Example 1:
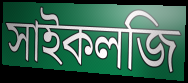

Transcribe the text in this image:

সাইকলজি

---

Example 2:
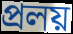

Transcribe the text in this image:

প্রলয়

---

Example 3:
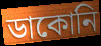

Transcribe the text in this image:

ডাকোনি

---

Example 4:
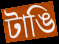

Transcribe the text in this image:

টাঙি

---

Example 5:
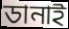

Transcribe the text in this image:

ডানাই